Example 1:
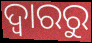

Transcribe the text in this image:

ଦ୍ଵାରରୁ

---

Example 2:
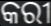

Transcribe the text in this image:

କରୀ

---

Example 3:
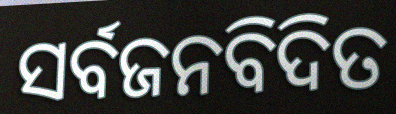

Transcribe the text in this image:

ସର୍ବଜନବିଦିତ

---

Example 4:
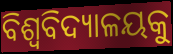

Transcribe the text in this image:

ବିଶ୍ବବିଦ୍ୟାଳୟକୁ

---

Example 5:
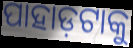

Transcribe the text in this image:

ପାହାଡ଼ଟାକୁ